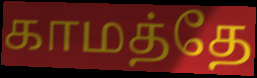
காமத்தே